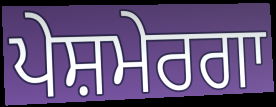
ਪੇਸ਼ਮੇਰਗਾ